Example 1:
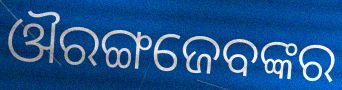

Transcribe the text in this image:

ଔରଙ୍ଗଜେବଙ୍କର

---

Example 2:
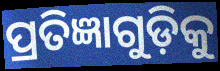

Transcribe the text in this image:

ପ୍ରତିଜ୍ଞାଗୁଡ଼ିକୁ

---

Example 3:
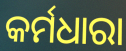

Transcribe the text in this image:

କର୍ମଧାରା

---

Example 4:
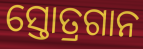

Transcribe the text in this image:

ସ୍ତୋତ୍ରଗାନ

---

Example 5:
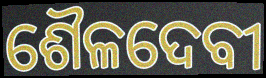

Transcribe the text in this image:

ଶୈଳଦେବୀ